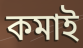
কমাই